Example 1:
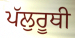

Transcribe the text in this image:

ਪੱਲੁਰੂਥੀ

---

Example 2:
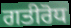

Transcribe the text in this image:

ਗਤੀਰੋਧ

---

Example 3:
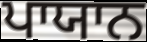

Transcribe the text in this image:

ਪਾਯਾਨ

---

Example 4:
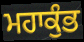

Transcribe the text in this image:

ਮਹਾਕੁੰਭ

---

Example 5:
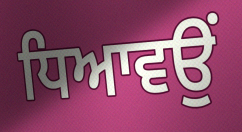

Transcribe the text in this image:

ਧਿਆਵਉਂ